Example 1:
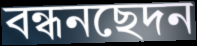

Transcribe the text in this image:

বন্ধনছেদন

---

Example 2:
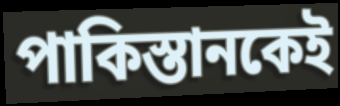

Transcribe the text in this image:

পাকিস্তানকেই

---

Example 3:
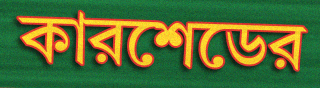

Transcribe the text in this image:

কারশেডের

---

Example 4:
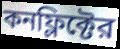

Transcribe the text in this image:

কনফ্লিক্টের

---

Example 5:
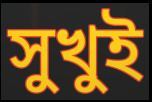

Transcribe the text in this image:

সুখুই